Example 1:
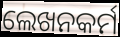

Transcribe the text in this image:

ଲେଖନକର୍ମ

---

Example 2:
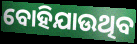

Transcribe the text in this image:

ବୋହିଯାଉଥିବ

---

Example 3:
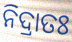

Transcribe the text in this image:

ନିଦ୍ରାତଃ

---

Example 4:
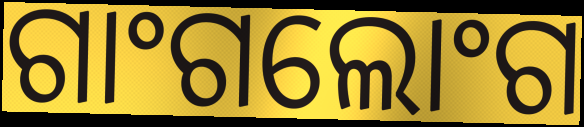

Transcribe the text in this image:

ଗାଂଗଲୋଂଗ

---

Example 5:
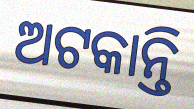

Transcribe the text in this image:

ଅଟକାନ୍ତି